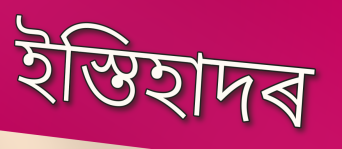
ইস্তিহাদৰ